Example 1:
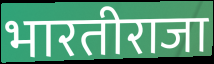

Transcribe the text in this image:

भारतीराजा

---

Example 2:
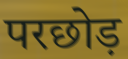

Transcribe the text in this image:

परछोड़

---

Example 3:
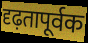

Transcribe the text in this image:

दृढ़तापूर्वक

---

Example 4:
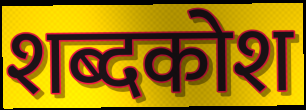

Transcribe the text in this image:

शब्दकोश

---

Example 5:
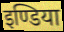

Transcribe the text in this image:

इण्डिया